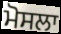
ਮੋਸਲਾ